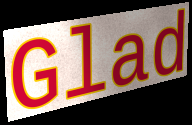
Glad